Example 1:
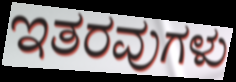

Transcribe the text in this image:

ಇತರವುಗಳು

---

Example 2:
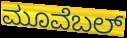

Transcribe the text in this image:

ಮೂವೆಬಲ್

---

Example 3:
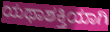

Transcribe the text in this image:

ಯಥಾಶಕ್ತಿಯಾಗಿ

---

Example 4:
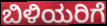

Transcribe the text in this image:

ಬಿಳಿಯರಿಗೆ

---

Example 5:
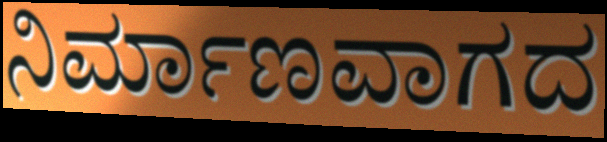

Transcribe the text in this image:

ನಿರ್ಮಾಣವಾಗದ